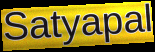
Satyapal